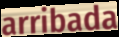
arribada